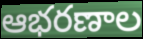
ఆభరణాల